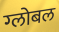
ग्लोबल